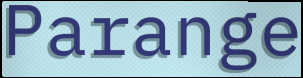
Parange